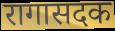
रागासदक